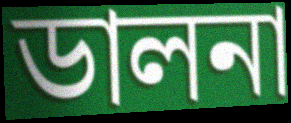
ডালনা